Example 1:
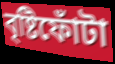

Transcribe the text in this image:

বৃষ্টিফোঁটা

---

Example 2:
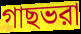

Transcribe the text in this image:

গাছভরা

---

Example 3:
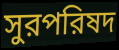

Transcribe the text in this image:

সুরপরিষদ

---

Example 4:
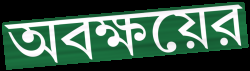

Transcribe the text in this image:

অবক্ষয়ের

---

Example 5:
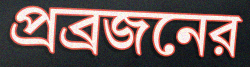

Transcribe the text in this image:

প্রব্রজনের